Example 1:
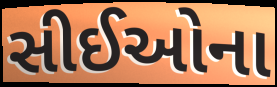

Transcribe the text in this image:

સીઈઓના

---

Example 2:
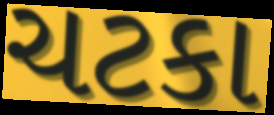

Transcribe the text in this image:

ચટકા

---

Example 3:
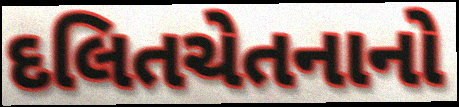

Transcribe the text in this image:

દલિતચેતનાનો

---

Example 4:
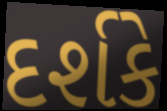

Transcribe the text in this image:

દર્શકે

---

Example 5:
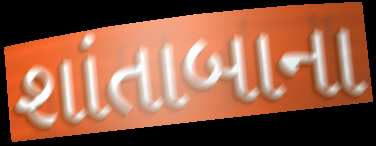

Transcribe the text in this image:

શાંતાબાના